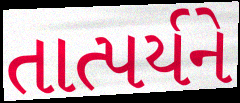
તાત્પર્યને